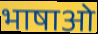
भाषाओ